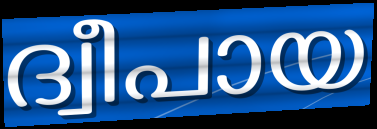
ദ്വീപായ